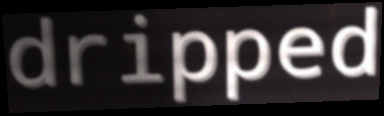
dripped